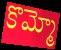
కొమ్మో